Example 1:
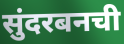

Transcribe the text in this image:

सुंदरबनची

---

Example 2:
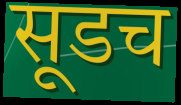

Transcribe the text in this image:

सूडच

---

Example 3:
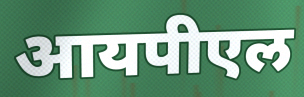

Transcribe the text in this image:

आयपीएल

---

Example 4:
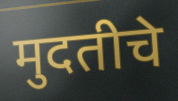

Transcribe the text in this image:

मुदतीचे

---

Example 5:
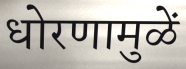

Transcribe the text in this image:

धोरणामुळें